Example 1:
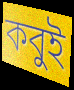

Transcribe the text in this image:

কবুই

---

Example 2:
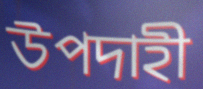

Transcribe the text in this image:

উপদাহী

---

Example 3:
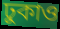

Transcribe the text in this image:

ঢুকাও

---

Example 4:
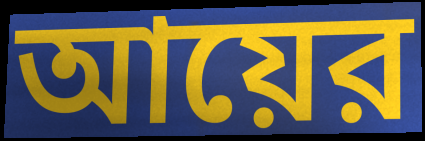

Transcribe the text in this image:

আয়ের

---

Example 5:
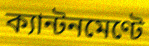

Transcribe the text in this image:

ক্যান্টনমেণ্টে